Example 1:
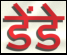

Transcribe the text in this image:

डेंडे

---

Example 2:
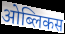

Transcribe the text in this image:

ओब्लिकस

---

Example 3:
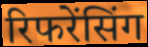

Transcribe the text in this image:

रिफरेंसिंग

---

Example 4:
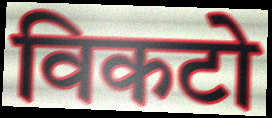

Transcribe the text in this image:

विकटो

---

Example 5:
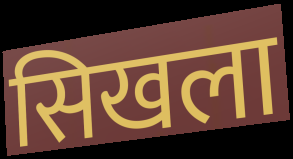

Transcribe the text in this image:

सिखला